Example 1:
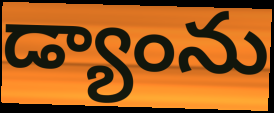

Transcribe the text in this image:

డ్యాంను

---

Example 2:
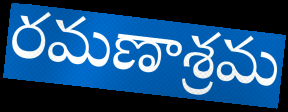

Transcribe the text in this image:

రమణాశ్రమ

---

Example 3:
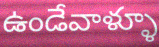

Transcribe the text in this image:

ఉండేవాళ్ళూ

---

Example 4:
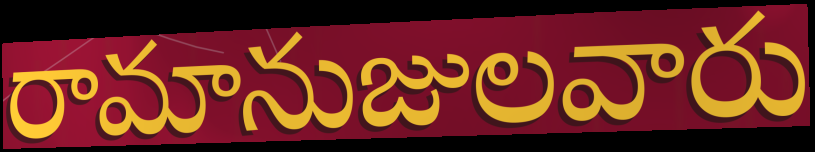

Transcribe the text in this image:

రామానుజులవారు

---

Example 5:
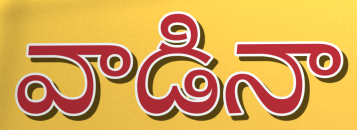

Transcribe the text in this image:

వాడినా